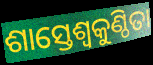
ଶାସ୍ତେଶ୍ବକୁଣ୍ଠିତା